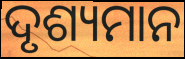
ଦୃଶ୍ୟମାନ